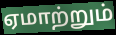
ஏமாற்றும்